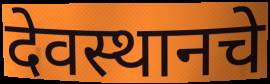
देवस्थानचे